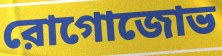
রোগোজোভ